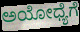
ಅಯೋಧ್ಯೆಗೆ